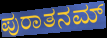
ಪುರಾತನಮ್